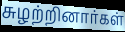
சுழற்றினார்கள்